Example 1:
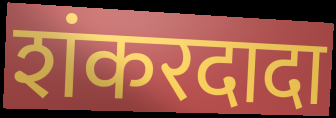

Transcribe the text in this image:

शंकरदादा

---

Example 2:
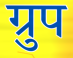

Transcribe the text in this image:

ग्रुप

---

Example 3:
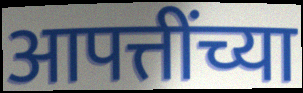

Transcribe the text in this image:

आपत्तींच्या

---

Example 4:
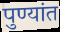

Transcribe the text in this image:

पुण्यांत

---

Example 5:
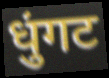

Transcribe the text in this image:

धुंगट